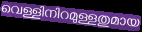
വെള്ളിനിറമുള്ളതുമായ